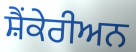
ਸ਼ੈਂਕੇਰੀਅਨ